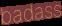
badass